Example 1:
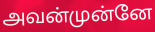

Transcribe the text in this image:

அவன்முன்னே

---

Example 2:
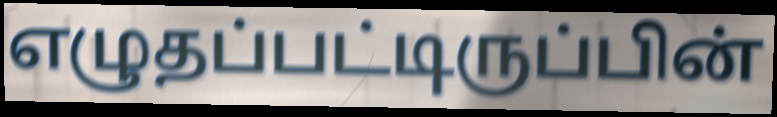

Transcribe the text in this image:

எழுதப்பட்டிருப்பின்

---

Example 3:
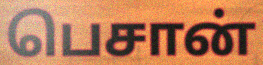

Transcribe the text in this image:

பெசான்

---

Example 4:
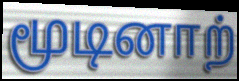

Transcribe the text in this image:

மூடினாற்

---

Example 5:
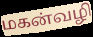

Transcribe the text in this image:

மகன்வழி